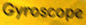
Gyroscope